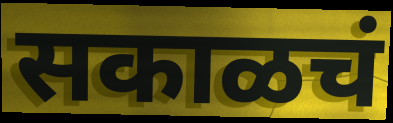
सकाळचं